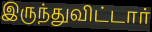
இருந்துவிட்டார்